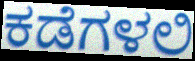
ಕಡೆಗಳಲಿ